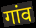
गांव